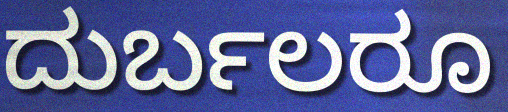
ದುರ್ಬಲರೂ